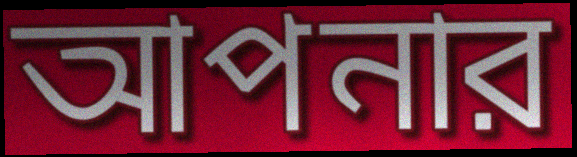
আপনার